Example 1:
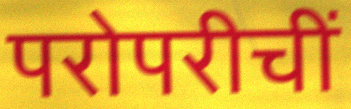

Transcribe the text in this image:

परोपरीचीं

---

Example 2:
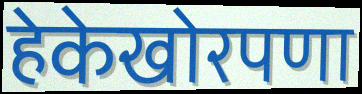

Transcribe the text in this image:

हेकेखोरपणा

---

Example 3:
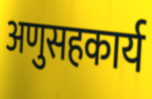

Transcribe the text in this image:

अणुसहकार्य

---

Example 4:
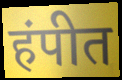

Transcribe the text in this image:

हंपीत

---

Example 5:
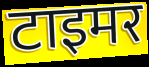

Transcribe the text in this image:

टाइमर